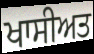
ਖਾਸੀਅਤ